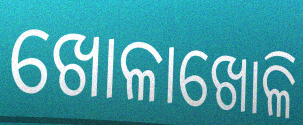
ଖୋଳାଖୋଳି